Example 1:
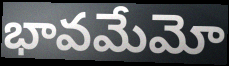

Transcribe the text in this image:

భావమేమో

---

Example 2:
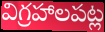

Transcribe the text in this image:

విగ్రహాలపట్ల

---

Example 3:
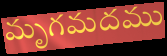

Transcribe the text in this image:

మృగమదము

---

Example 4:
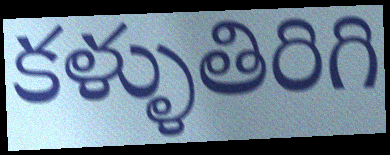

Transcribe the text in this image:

కళ్ళుతిరిగి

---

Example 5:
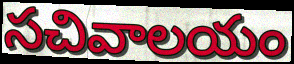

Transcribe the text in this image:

సచివాలయం